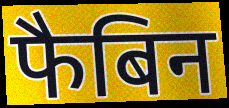
फैबिन